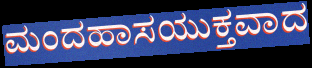
ಮಂದಹಾಸಯುಕ್ತವಾದ